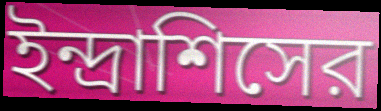
ইন্দ্রাশিসের